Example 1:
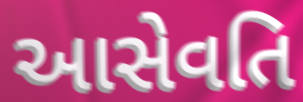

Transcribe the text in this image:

આસેવતિ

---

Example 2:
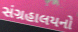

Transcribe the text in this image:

સંગ્રહાલયનો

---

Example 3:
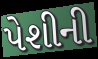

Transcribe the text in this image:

પેશીની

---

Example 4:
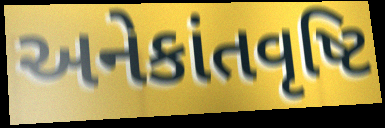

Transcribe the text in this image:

અનેકાંતવૃષ્ટિ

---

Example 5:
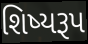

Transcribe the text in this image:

શિષ્યરૂપ